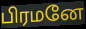
பிரமனே